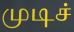
முடிச்